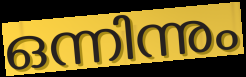
ഒന്നിന്നും